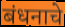
बंधनाचे